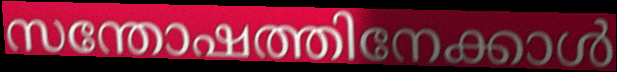
സന്തോഷത്തിനേക്കാൾ